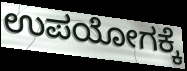
ಉಪಯೋಗಕ್ಕೆ